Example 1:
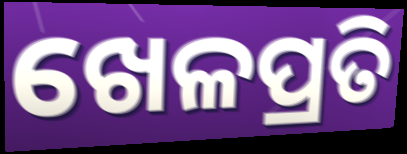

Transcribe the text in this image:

ଖେଳପ୍ରତି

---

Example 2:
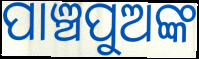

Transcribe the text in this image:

ପାଞ୍ଚପୁଅଙ୍କ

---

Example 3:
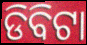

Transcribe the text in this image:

ଡିବିଟା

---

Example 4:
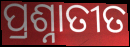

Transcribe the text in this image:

ପ୍ରଶ୍ନାତୀତ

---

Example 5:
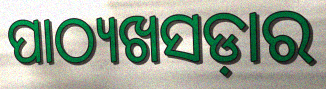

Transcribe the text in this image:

ପାଠ୍ୟଖସଡ଼ାର